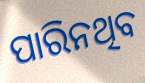
ପାରିନଥିବ